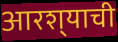
आरश्याची